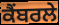
ਕੈਂਬਰਲੇ